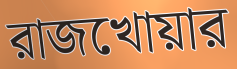
রাজখোয়ার